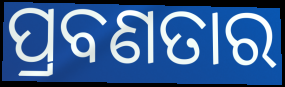
ପ୍ରବଣତାର